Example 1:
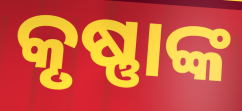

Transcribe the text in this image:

କୃଷ୍ଣାଙ୍କ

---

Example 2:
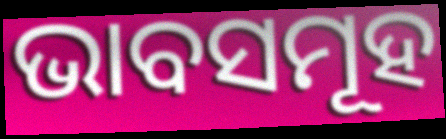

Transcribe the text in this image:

ଭାବସମୂହ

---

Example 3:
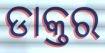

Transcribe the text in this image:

ଡାକ୍ତର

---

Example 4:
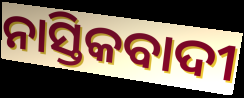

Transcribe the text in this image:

ନାସ୍ତିକବାଦୀ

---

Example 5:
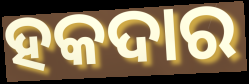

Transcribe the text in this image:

ହକଦାର